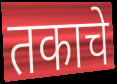
तकाचे